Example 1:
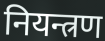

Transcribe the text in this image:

नियन्त्रण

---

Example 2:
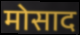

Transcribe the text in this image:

मोसाद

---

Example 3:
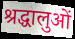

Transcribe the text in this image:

श्रद्धालुओं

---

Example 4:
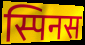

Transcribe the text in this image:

स्पिनस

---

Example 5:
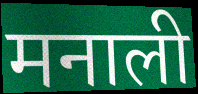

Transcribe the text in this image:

मनाली